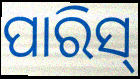
ପାରିସ୍